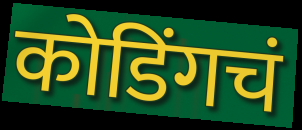
कोडिंगचं